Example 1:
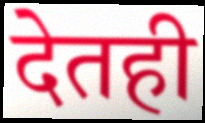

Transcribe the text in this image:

देतही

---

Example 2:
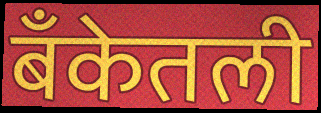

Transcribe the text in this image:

बँकेतली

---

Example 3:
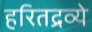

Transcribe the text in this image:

हरितद्रव्ये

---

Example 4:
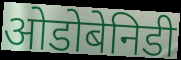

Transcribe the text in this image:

ओडोबेनिडी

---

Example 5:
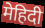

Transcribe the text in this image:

मेहिदी